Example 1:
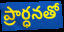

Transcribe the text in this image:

ప్రార్ధనతో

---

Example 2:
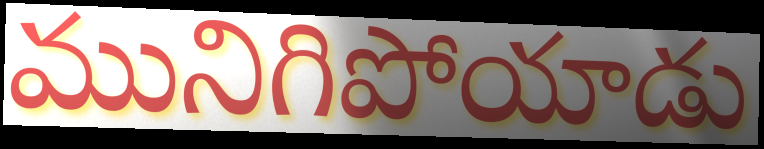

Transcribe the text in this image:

మునిగిపోయాడు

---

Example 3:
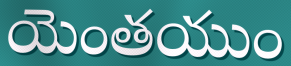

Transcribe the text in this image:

యెంతయుం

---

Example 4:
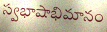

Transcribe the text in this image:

స్వభాషాభిమానం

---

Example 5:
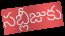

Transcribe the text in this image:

సబ్లీజుకు